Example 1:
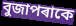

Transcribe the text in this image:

বুজাপৰাকে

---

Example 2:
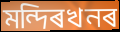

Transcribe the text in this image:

মন্দিৰখনৰ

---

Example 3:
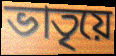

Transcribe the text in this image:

ভাতৃয়ে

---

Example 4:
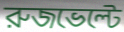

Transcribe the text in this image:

ৰুজভেল্টে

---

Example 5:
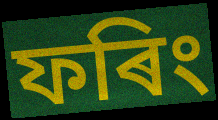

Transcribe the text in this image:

ফৰিং